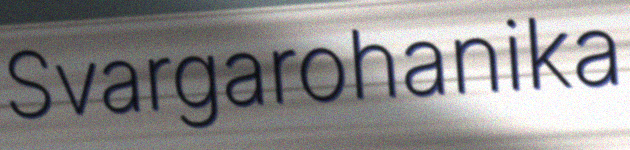
Svargarohanika